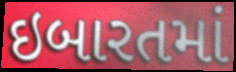
ઇબારતમાં